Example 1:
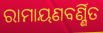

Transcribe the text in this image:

ରାମାୟଣବର୍ଣ୍ଣିତ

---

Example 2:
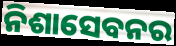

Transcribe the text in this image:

ନିଶାସେବନର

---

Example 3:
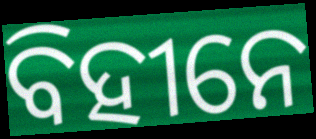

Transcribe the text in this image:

ବିହୀନେ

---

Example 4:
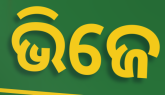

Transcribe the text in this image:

ଭିଜେ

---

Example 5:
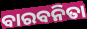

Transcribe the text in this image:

ବାରବନିତା